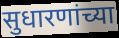
सुधारणांच्या